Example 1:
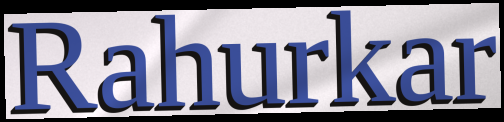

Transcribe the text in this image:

Rahurkar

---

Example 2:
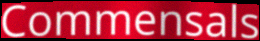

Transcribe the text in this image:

Commensals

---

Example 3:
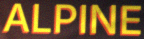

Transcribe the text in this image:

ALPINE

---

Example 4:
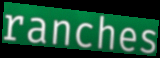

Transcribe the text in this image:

ranches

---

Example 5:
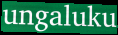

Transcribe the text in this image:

ungaluku